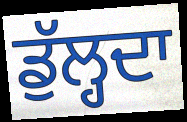
ਡੁੱਲ੍ਹਦਾ